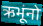
ऋभूंनो